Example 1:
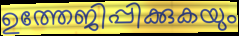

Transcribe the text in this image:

ഉത്തേജിപ്പിക്കുകയും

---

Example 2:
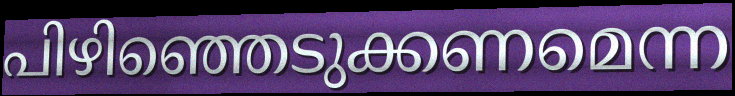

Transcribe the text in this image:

പിഴിഞ്ഞെടുക്കണമെന്ന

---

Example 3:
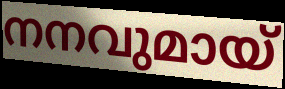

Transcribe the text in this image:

നനവുമായ്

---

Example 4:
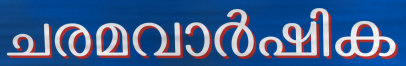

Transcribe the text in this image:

ചരമവാർഷിക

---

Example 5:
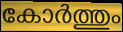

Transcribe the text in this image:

കോർത്തും